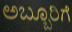
ಅಬ್ಬೂರಿಗೆ